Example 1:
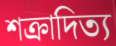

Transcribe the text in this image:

শক্রাদিত্য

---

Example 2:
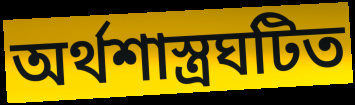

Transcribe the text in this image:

অর্থশাস্ত্রঘটিত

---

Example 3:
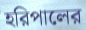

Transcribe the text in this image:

হরিপালের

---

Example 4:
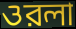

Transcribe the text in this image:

ওরলা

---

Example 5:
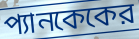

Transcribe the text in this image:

প্যানকেকের